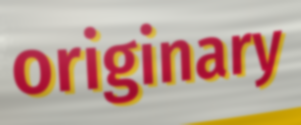
originary